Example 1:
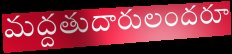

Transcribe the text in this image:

మద్దతుదారులందరూ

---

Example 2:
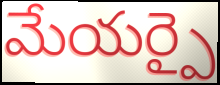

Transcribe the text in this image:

మేయర్పై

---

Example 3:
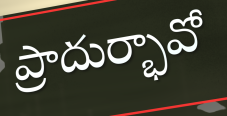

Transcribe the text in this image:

ప్రాదుర్భావో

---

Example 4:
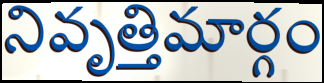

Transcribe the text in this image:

నివృత్తిమార్గం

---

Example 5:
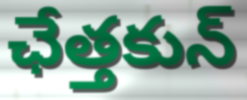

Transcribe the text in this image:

ఛేత్తకున్